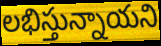
లభిస్తున్నాయని